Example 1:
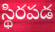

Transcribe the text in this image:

స్థిరపడ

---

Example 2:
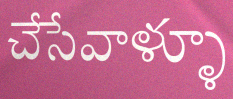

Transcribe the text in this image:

చేసేవాళ్ళూ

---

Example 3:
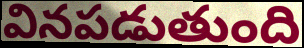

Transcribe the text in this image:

వినపడుతుంది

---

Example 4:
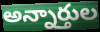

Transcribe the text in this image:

అన్నార్తుల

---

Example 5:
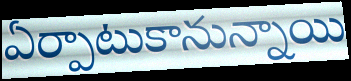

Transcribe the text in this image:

ఏర్పాటుకానున్నాయి